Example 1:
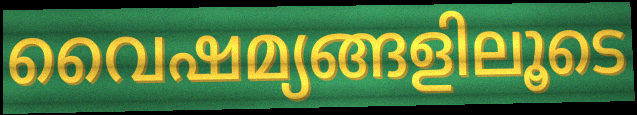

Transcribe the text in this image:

വൈഷമ്യങ്ങളിലൂടെ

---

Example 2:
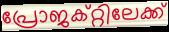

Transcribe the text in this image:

പ്രോജക്റ്റിലേക്ക്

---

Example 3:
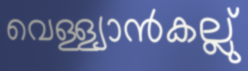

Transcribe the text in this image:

വെള്ള്യാൻകല്ലു്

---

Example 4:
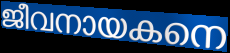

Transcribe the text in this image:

ജീവനായകനെ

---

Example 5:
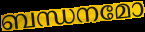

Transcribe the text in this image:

ബന്ധനമോ